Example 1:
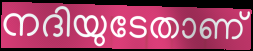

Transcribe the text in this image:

നദിയുടേതാണ്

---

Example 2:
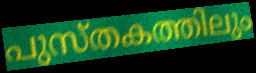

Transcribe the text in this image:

പുസ്തകത്തിലും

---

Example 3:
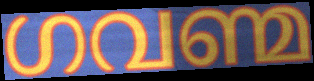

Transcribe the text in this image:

ഗവണ്മ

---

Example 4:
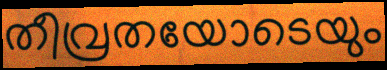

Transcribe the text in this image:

തീവ്രതയോടെയും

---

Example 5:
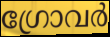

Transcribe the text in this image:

ഗ്രോവർ